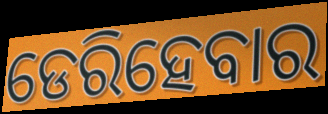
ଡେରିହେବାର